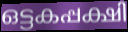
ഒട്ടകപ്പക്ഷി